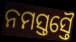
ନମସ୍ତସ୍ତୈ